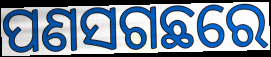
ପଣସଗଛରେ